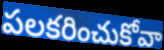
పలకరించుకోవా